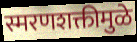
स्मरणशक्तीमुळे